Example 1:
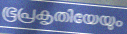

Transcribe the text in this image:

ഭൂപ്രകൃതിയേയും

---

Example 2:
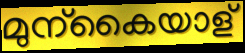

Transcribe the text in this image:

മുന്കൈയാള്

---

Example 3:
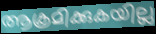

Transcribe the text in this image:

ആക്രമിക്കുകയില്ല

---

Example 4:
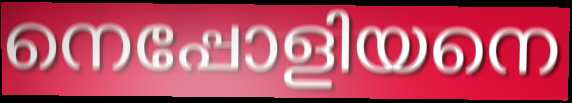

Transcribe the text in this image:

നെപ്പോളിയനെ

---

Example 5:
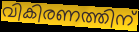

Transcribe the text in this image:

വികിരണത്തിന്